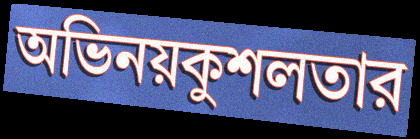
অভিনয়কুশলতার